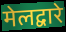
मेलद्वारे